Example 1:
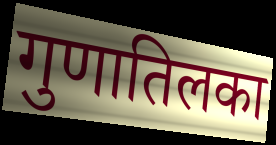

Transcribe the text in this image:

गुणातिलका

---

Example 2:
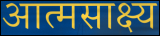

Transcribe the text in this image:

आत्मसाक्ष्य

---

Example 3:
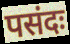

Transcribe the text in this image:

पसंदः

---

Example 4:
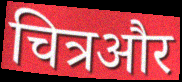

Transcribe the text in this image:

चित्रऔर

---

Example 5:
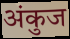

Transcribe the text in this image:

अंकुज